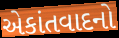
એકાંતવાદનો